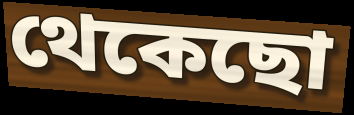
থেকেছো